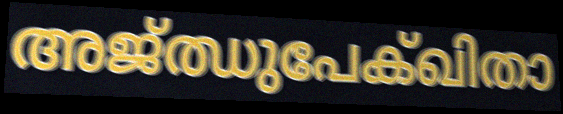
അജ്ഝുപേക്ഖിതാ